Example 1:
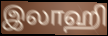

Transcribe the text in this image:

இலாஹி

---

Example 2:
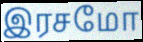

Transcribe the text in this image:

இரசமோ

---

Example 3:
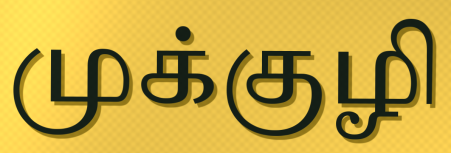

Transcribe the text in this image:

முக்குழி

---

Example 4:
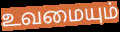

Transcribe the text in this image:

உவமையும்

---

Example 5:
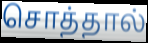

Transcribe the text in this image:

சொத்தால்